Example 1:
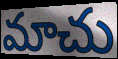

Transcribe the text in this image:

మాచు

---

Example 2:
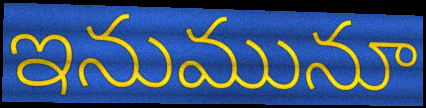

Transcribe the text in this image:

ఇనుమునూ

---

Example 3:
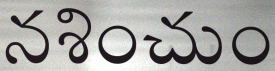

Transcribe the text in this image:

నశించుం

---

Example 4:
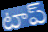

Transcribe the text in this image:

టాప్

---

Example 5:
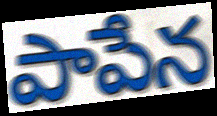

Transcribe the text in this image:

పాపేన